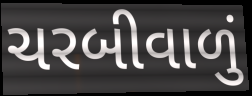
ચરબીવાળું